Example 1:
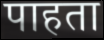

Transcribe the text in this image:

पाहता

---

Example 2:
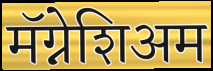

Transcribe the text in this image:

मॅग्नेशिअम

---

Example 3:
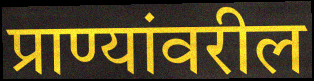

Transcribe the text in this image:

प्राण्यांवरील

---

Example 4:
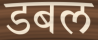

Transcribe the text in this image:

डबल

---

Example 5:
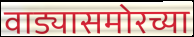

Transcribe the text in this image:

वाड्यासमोरच्या